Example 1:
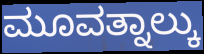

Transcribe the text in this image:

ಮೂವತ್ನಾಲ್ಕು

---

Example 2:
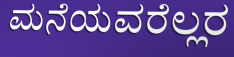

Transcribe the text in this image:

ಮನೆಯವರೆಲ್ಲರ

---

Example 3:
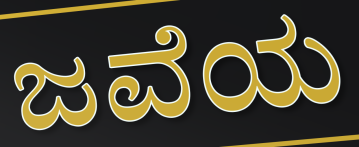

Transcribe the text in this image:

ಜವೆಯ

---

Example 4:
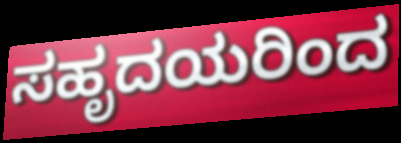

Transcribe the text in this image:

ಸಹೃದಯರಿಂದ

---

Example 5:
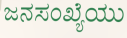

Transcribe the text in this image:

ಜನಸಂಖ್ಯೆಯು